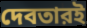
দেবতারই